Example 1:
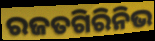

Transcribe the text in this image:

ରଜତଗିରିନିଭ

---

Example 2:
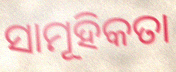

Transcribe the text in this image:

ସାମୂହିକତା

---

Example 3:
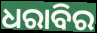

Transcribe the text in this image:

ଧରାବିର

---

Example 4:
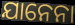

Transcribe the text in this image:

ଯାନେନା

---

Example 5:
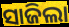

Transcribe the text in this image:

ସାଜିଲା